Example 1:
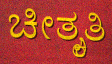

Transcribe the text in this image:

ಚೀತ್ಕೃತಿ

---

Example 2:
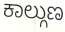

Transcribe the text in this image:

ಕಾಲ್ಗುಣ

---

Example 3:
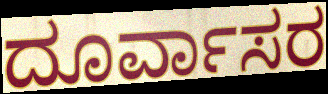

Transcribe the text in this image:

ದೂರ್ವಾಸರ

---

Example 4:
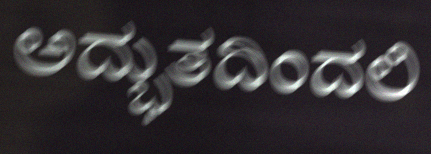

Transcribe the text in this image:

ಅದ್ಭುತದಿಂದಲಿ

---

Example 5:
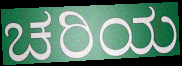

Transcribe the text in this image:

ಚರಿಯ